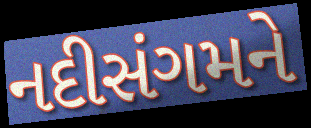
નદીસંગમને